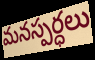
మనస్పర్ధలు